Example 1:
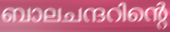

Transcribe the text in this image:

ബാലചന്ദറിന്റെ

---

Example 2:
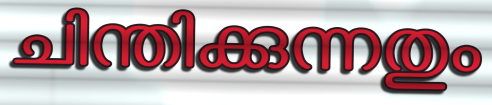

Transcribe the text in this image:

ചിന്തിക്കുന്നതും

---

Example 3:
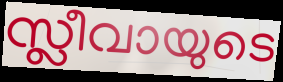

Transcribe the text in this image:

സ്ലീവായുടെ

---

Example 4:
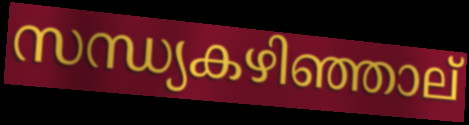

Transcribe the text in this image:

സന്ധ്യകഴിഞ്ഞാല്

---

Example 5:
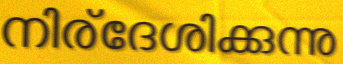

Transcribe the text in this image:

നിര്ദേശിക്കുന്നു